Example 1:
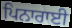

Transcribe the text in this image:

ਪਿਨਾਰਾਈ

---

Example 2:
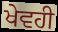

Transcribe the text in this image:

ਖੇਵਹੀ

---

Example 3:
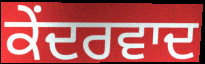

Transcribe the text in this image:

ਕੇਂਦਰਵਾਦ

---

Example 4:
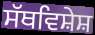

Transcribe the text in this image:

ਸੱਥਵਿਸ਼ੇਸ਼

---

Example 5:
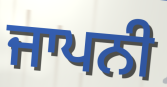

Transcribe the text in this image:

ਜਾਪਨੀ